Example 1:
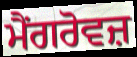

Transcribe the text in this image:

ਮੈਂਗਰੋਵਜ਼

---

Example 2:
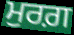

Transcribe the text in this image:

ਮੁਰਗ਼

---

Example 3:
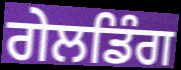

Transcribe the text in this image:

ਗੇਲਡਿੰਗ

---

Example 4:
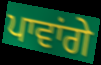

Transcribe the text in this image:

ਪਾਵਾਂਗੇ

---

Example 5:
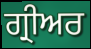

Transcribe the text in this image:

ਗ੍ਰੀਅਰ